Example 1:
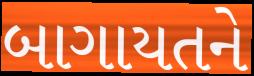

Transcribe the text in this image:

બાગાયતને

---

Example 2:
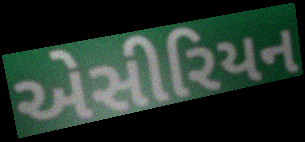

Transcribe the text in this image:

એસીરિયન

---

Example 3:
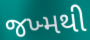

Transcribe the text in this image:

જખ્મથી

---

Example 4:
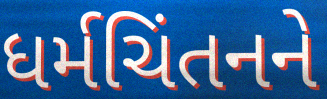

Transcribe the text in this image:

ધર્મચિંતનને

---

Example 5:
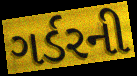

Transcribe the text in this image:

ગર્ડરની